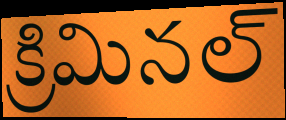
క్రిమినల్